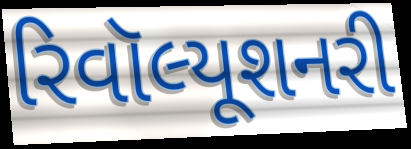
રિવૉલ્યૂશનરી